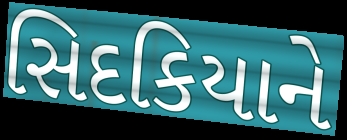
સિદકિયાને